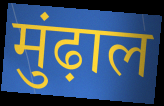
मुंढ़ाल